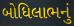
બોધિલાભનું